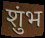
शुंभ